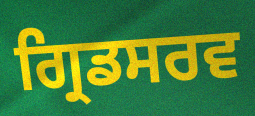
ਗ੍ਰਿਡਸਰਵ